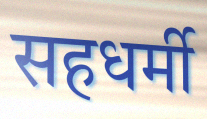
सहधर्मी